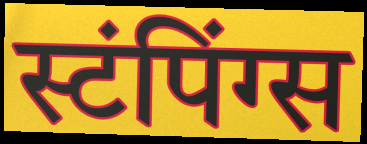
स्टंपिंग्स